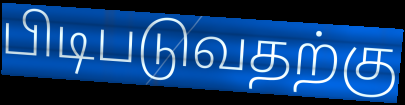
பிடிபடுவதற்கு